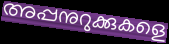
അപ്പനുറുക്കുകളെ